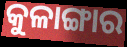
କୁଳାଙ୍ଗାର